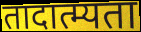
तादात्म्यता